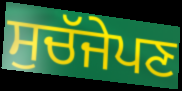
ਸੁਚੱਜੇਪਣ